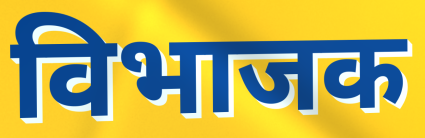
विभाजक